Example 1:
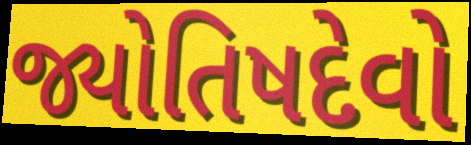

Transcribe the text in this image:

જ્યોતિષદેવો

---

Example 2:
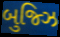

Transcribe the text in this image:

બુજ્ઝિ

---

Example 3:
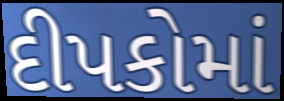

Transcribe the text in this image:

દીપકોમાં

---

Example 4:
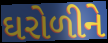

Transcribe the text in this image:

ઘરોળીને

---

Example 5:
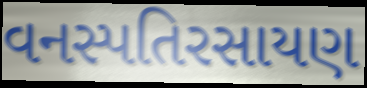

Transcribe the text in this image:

વનસ્પતિરસાયણ